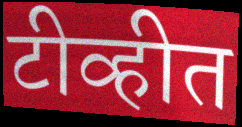
टीव्हीत